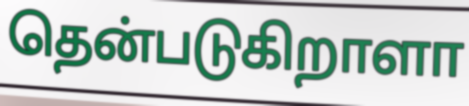
தென்படுகிறாளா